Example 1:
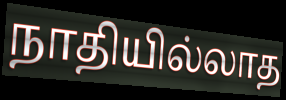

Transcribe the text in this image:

நாதியில்லாத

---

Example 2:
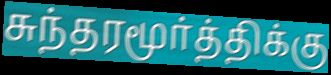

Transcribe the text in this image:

சுந்தரமூர்த்திக்கு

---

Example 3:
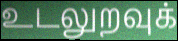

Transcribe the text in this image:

உடலுறவுக்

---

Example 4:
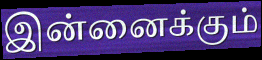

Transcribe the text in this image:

இன்னைக்கும்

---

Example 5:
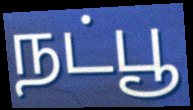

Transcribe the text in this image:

நட்பூ